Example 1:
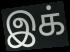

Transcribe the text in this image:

இக்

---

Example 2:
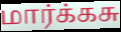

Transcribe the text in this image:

மார்க்கசு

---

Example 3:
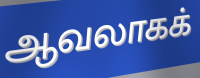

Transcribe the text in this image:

ஆவலாகக்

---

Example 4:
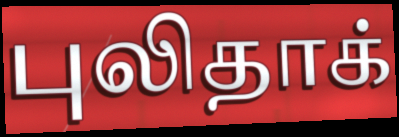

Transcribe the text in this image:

புலிதாக்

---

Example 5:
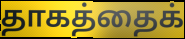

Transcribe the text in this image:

தாகத்தைக்